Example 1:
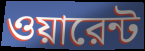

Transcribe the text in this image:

ওয়ারেন্ট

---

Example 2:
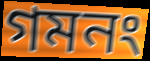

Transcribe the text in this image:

গমনং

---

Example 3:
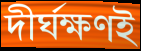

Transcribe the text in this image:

দীর্ঘক্ষণই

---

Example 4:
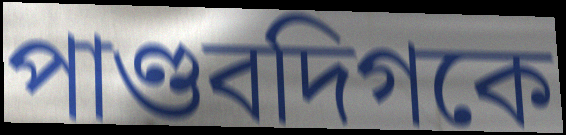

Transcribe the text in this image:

পাণ্ডবদিগকে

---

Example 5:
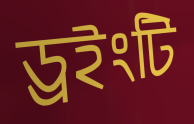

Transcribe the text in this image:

ড্রইংটি